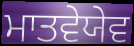
ਮਾਤਵੇਯੇਵ